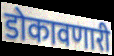
डोकावणारी